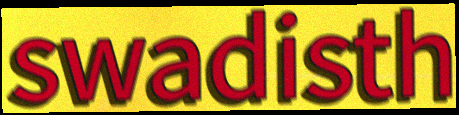
swadisth